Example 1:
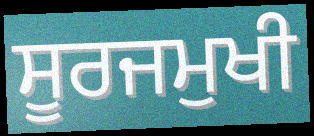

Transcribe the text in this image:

ਸੂਰਜਮੁਖੀ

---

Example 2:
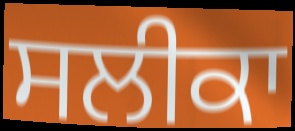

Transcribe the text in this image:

ਸਲੀਕਾ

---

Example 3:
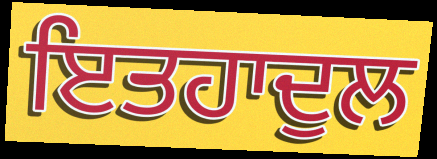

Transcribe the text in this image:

ਇਤਹਾਦੁਲ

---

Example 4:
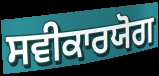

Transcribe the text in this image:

ਸਵੀਕਾਰਯੋਗ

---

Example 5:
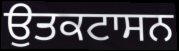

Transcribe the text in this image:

ਉਤਕਟਾਸਨ